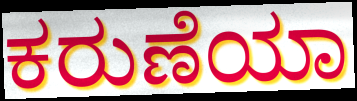
ಕರುಣೆಯಾ